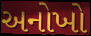
અનોખો